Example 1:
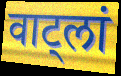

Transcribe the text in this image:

वाट्लां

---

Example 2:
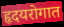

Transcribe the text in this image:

हृदयरोगात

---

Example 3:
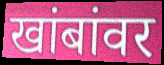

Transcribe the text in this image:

खांबांवर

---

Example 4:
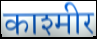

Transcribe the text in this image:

काश्मीर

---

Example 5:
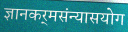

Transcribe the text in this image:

ज्ञानकर्मसंन्यासयोग